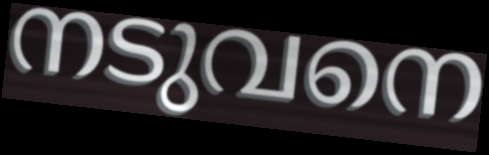
നടുവനെ